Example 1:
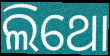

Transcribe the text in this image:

ଲିଥୋ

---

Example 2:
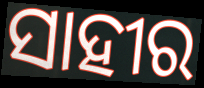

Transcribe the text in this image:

ସାହୀର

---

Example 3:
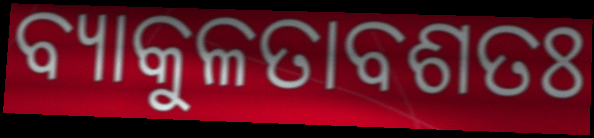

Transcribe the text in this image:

ବ୍ୟାକୁଳତାବଶତଃ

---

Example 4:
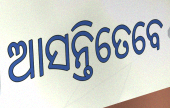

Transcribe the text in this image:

ଆସନ୍ତିତେବେ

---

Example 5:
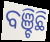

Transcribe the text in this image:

ବଞ୍ଚିଛି